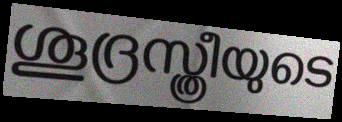
ശൂദ്രസ്ത്രീയുടെ